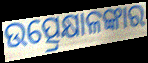
ଉତ୍ପ୍ରେକ୍ଷାଳଙ୍କାର